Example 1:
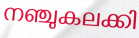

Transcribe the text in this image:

നഞ്ചുകലക്കി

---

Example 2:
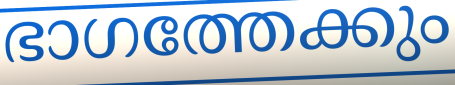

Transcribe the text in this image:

ഭാഗത്തേക്കും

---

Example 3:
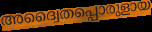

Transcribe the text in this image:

അദ്വൈതപ്പൊരുളായ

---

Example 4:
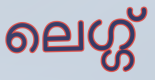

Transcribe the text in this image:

ലെഗ്ഗ്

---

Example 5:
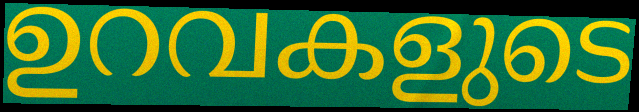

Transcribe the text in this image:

ഉറവകളുടെ